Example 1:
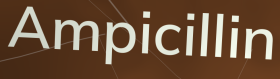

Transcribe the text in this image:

Ampicillin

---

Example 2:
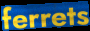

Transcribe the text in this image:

ferrets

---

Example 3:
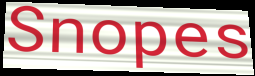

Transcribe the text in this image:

Snopes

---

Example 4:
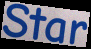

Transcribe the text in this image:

Star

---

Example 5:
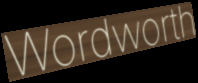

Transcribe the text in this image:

Wordworth